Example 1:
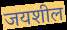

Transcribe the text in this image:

जयशील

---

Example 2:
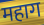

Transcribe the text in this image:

महाग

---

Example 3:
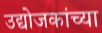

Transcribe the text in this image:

उद्योजकांच्या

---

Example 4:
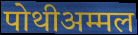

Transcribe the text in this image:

पोथीअम्मल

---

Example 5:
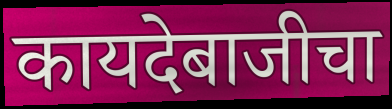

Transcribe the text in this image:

कायदेबाजीचा